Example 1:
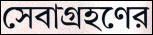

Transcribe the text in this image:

সেবাগ্রহণের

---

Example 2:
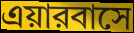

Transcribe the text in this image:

এয়ারবাসে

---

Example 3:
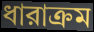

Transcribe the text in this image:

ধারাক্রম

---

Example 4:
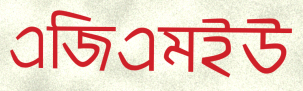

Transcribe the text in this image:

এজিএমইউ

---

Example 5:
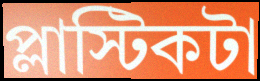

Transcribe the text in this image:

প্লাস্টিকটা